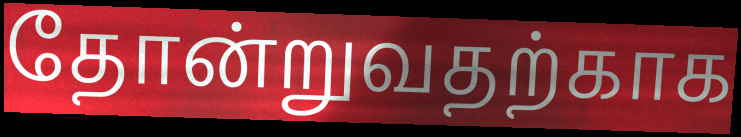
தோன்றுவதற்காக